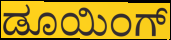
ಡೂಯಿಂಗ್